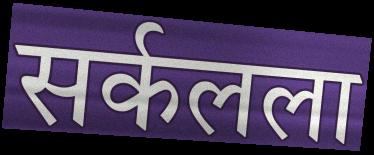
सर्कलला